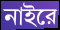
নাইরে